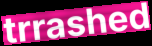
trrashed